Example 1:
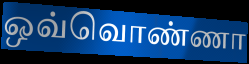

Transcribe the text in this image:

ஒவ்வொண்ணா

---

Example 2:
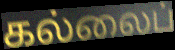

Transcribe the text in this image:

கல்லைப்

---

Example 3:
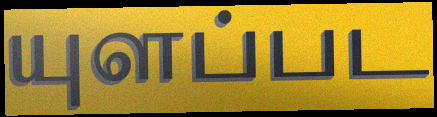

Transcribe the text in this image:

யுளப்பட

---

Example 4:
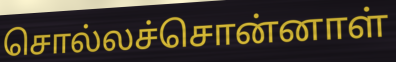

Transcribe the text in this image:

சொல்லச்சொன்னாள்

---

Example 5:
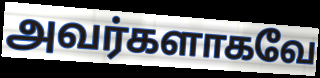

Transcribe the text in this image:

அவர்களாகவே